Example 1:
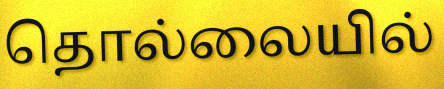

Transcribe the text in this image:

தொல்லையில்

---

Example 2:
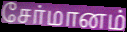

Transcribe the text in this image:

சேர்மானம்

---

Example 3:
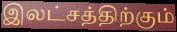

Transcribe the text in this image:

இலட்சத்திற்கும்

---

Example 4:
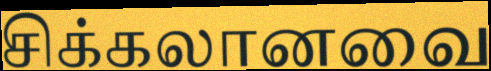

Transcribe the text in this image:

சிக்கலானவை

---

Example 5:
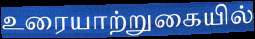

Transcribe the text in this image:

உரையாற்றுகையில்